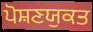
ਪੋਸ਼ਣਯੁਕਤ